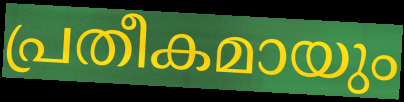
പ്രതീകമായും